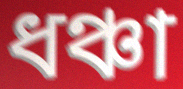
ধঞ্চা